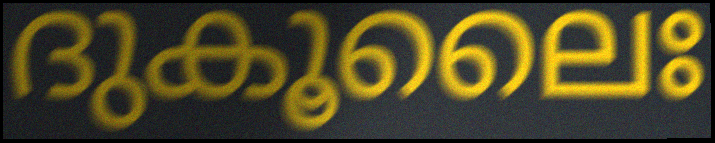
ദുകൂലൈഃ